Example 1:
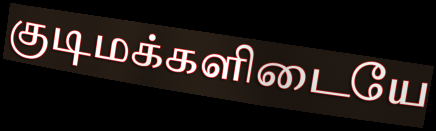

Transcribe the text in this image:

குடிமக்களிடையே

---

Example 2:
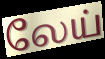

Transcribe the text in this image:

லேய்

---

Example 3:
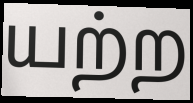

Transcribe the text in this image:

யற்ற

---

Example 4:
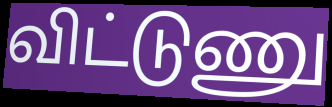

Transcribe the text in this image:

விட்டுணு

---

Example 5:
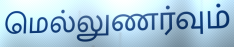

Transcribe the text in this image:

மெல்லுணர்வும்